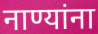
नाण्यांना